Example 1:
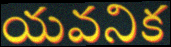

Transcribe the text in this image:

యవనిక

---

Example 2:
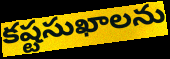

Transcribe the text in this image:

కష్టసుఖాలను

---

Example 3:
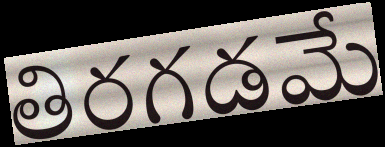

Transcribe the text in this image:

తిరగడమే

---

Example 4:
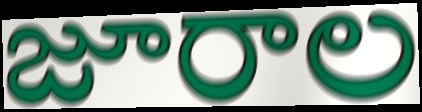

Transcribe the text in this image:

జూరాల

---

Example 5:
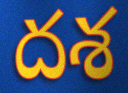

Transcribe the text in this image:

దశ